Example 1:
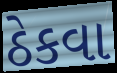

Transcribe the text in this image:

ઠેકવા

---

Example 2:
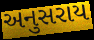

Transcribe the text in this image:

અનુસરાય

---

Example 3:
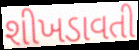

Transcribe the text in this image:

શીખડાવતી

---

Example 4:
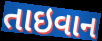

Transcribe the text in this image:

તાઇવાન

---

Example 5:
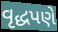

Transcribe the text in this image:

વૃદ્ધપણે